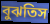
বুঝতিস